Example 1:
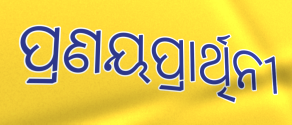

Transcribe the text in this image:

ପ୍ରଣୟପ୍ରାର୍ଥିନୀ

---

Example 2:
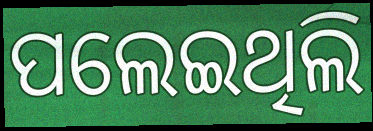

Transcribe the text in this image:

ପଲେଇଥିଲି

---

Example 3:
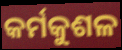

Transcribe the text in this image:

କର୍ମକୁଶଳ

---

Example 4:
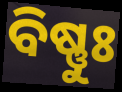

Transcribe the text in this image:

ବିଷ୍ଣୁଃ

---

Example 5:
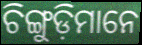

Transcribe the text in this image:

ଚିଙ୍ଗୁଡ଼ିମାନେ